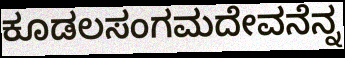
ಕೂಡಲಸಂಗಮದೇವನೆನ್ನ